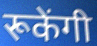
रूकेंगी